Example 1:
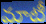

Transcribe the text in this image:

మాటీ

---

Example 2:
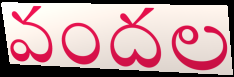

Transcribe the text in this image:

వందల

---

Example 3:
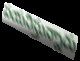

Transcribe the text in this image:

పయనిస్తున్నారు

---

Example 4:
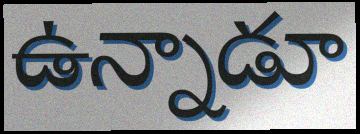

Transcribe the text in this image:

ఉన్నాడూ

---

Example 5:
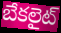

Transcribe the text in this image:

బేకలైట్